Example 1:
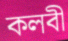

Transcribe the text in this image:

কলবী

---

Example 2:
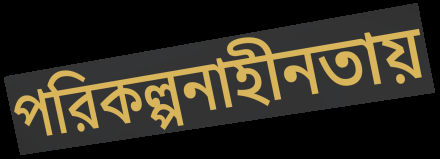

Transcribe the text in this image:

পরিকল্পনাহীনতায়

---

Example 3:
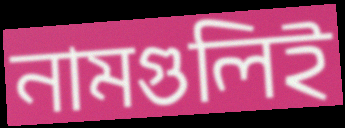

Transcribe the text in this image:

নামগুলিই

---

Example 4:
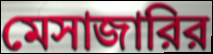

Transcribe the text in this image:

মেসাজারির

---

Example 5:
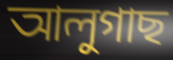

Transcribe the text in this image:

আলুগাছ